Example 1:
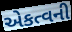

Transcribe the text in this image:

એકત્વની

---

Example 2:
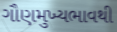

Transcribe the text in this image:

ગૌણમુખ્યભાવથી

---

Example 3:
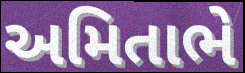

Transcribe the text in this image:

અમિતાભે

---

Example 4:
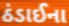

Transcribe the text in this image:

ઠંડાઈના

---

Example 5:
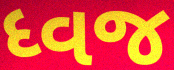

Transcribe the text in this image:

ધ્વજ